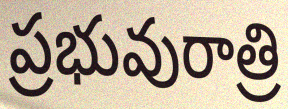
ప్రభువురాత్రి